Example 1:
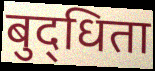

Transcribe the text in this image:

बुद्धिता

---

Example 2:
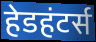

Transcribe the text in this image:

हेडहंटर्स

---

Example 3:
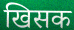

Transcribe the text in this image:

खिसक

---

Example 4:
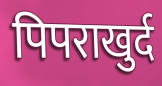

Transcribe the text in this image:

पिपराखुर्द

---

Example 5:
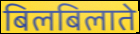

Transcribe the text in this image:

बिलबिलाते